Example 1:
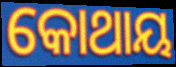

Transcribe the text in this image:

କୋଥାୟ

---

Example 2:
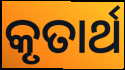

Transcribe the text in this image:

କୃତାର୍ଥ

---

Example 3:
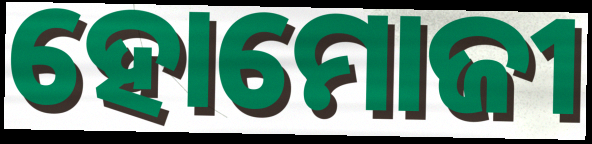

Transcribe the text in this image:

ହୋମୋଜୀ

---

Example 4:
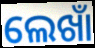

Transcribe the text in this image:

ଲେଖାଁ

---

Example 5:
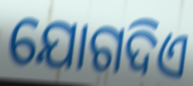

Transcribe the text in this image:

ଯୋଗଦିଏ